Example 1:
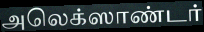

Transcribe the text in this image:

அலெக்ஸாண்டர்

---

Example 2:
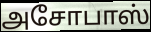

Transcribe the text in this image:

அசோபாஸ்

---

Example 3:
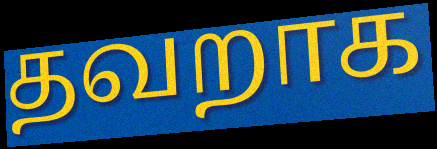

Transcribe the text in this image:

தவறாக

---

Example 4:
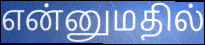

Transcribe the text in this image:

என்னுமதில்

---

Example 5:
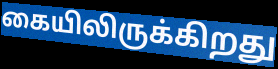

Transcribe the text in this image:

கையிலிருக்கிறது